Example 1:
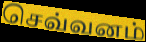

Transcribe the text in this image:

செவ்வனம்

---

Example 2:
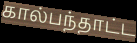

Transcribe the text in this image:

கால்பந்தாட்ட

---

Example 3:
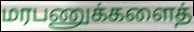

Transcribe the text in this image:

மரபணுக்களைத்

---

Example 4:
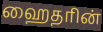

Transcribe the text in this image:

ஹைதரின்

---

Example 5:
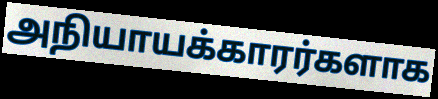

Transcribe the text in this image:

அநியாயக்காரர்களாக